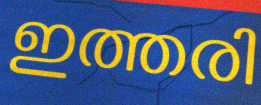
ഇത്തരി